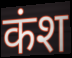
कंश